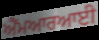
ਐੱਮਆਰਆਈ